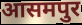
आसमपुर